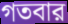
গতবার